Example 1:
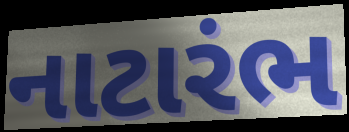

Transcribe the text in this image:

નાટારંભ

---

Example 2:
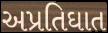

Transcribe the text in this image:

અપ્રતિઘાત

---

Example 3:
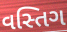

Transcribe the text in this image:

વસ્તિગ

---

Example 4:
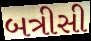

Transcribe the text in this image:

બત્રીસી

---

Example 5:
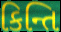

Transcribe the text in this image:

કિન્તિ